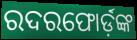
ରଦରଫୋର୍ଡ଼ଙ୍କ